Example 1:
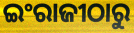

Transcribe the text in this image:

ଇଂରାଜୀଠାରୁ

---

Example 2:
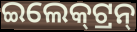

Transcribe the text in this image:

ଇଲେକ୍‍ଟ୍ରନ୍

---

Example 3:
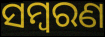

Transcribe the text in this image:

ସମ୍ଵରଣ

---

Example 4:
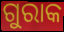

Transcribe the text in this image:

ଗୁରାକ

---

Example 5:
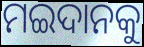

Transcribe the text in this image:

ମଇଦାନକୁ